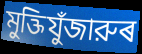
মুক্তিযুঁজাৰুৰ